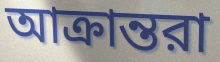
আক্রান্তরা